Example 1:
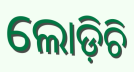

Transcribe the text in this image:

ଲୋଡ଼ିଚି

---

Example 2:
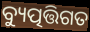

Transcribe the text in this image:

ବ୍ୟୁତ୍ପତ୍ତିଗତ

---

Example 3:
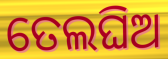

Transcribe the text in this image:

ତେଲଘିଅ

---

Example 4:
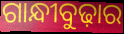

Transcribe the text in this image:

ଗାନ୍ଧୀବୁଢ଼ାର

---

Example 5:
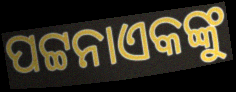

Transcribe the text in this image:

ପଟ୍ଟନାଏକଙ୍କୁ